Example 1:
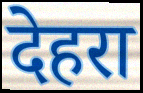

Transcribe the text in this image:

देहरा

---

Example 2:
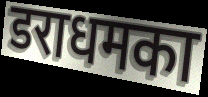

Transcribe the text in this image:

डराधमका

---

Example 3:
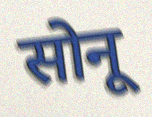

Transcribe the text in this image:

सोनू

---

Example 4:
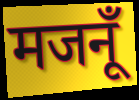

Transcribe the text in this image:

मजनूँ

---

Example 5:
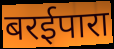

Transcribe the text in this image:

बरईपारा